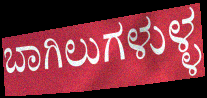
ಬಾಗಿಲುಗಳುಳ್ಳ